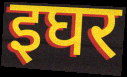
इघर